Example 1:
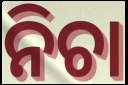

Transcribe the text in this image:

ନିଚା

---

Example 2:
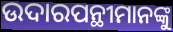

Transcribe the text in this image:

ଉଦାରପନ୍ଥୀମାନଙ୍କୁ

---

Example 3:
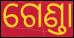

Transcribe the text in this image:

ଗେଣ୍ଡା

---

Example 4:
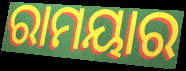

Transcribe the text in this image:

ରାମୟାର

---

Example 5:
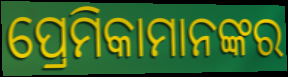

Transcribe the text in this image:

ପ୍ରେମିକାମାନଙ୍କର